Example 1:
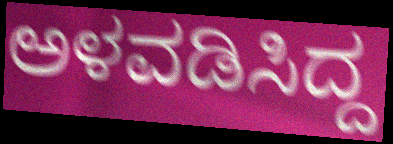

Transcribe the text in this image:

ಅಳವಡಿಸಿದ್ದ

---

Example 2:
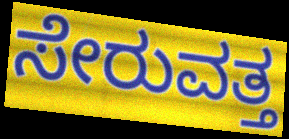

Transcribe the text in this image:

ಸೇರುವತ್ತ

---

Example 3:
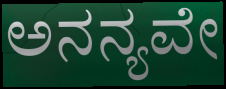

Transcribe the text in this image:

ಅನನ್ಯವೇ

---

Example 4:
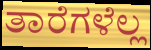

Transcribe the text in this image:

ತಾರೆಗಳೆಲ್ಲ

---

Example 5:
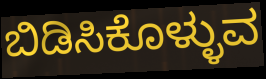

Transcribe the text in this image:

ಬಿಡಿಸಿಕೊಳ್ಳುವ